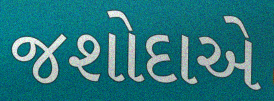
જશોદાએ